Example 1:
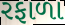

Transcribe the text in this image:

રફાળા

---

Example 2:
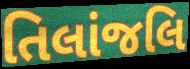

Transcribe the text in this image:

તિલાંજલિ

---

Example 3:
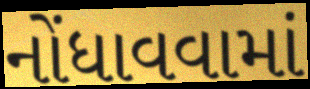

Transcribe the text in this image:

નોંધાવવામાં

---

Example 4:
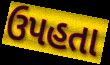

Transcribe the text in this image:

ઉપહતા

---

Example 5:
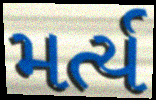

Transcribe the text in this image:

મર્ત્ય